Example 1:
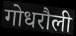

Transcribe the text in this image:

गोधरौली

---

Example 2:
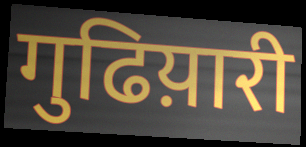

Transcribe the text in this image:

गुढिय़ारी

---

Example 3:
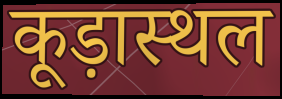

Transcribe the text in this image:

कूड़ास्थल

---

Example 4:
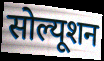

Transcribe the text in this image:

सोल्यूशन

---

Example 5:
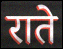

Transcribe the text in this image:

राते